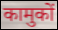
कामुकों